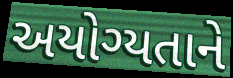
અયોગ્યતાને